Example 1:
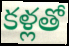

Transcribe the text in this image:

కళ్లతో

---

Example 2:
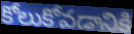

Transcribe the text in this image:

కోలుకోవడానికి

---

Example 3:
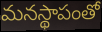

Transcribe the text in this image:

మనస్థాపంతో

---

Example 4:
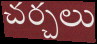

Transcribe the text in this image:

చర్చలు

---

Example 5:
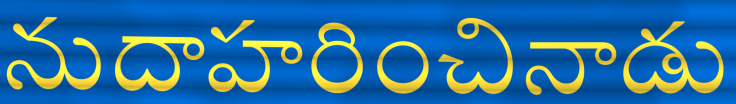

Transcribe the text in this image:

నుదాహరించినాడు